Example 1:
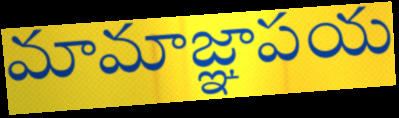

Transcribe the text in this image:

మామాజ్ఞాపయ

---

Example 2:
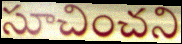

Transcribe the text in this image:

సూచించని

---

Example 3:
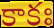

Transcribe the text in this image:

కాకః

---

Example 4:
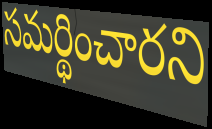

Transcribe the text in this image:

సమర్థించారని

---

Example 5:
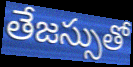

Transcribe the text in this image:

తేజస్సుతో